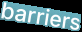
barriers